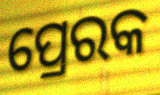
ପ୍ରେରକ